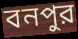
বনপুর